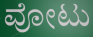
ವೋಟು